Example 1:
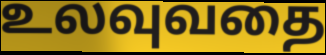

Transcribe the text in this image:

உலவுவதை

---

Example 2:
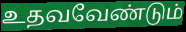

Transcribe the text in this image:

உதவவேண்டும்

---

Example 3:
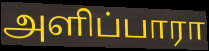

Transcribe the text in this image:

அளிப்பாரா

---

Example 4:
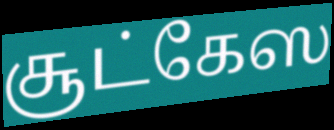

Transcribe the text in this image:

சூட்கேஸ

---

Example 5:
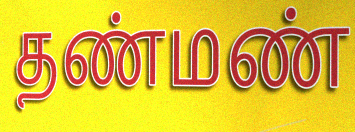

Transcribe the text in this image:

தண்மண்